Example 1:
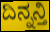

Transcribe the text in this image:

ದಿನ್ನನ್ತಿ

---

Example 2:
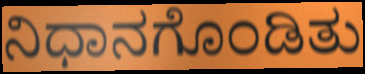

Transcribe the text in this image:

ನಿಧಾನಗೊಂಡಿತು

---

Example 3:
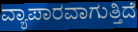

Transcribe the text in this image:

ವ್ಯಾಪಾರವಾಗುತ್ತಿದೆ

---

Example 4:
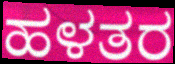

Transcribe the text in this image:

ಹಳತರ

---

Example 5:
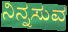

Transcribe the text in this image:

ನಿನ್ನಸುವ